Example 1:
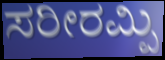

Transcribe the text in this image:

ಸರೀರಮ್ಪಿ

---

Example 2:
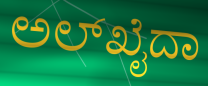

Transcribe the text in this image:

ಅಲ್‌ಖೈದಾ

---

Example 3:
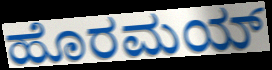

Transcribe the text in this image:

ಹೊರಮಯ್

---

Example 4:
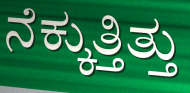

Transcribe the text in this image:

ನೆಕ್ಕುತ್ತಿತ್ತು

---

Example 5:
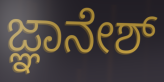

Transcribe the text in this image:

ಜ್ಞಾನೇಶ್